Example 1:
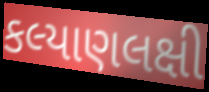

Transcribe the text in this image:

કલ્યાણલક્ષી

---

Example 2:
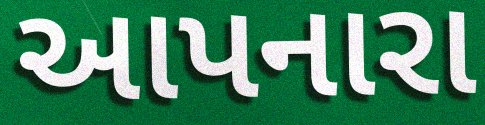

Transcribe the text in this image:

આપનારા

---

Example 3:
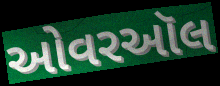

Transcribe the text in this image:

ઓવરઑલ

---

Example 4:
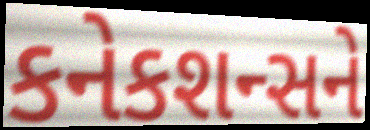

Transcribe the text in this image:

કનેકશન્સને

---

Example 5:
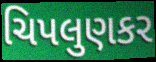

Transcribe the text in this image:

ચિપલુણકર